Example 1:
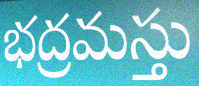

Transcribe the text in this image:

భద్రమస్తు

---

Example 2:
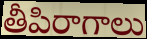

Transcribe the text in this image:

తీపిరాగాలు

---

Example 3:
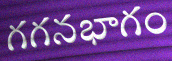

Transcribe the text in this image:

గగనభాగం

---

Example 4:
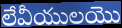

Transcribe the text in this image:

లేవీయులయొ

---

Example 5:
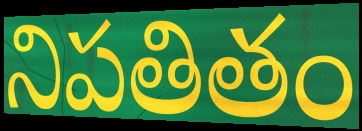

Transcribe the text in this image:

నిపతితం